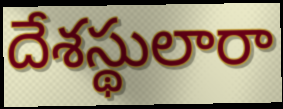
దేశస్థులారా